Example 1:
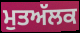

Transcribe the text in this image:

ਮੁਤਅੱਲਕ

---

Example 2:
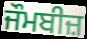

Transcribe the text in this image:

ਜੌਮਬੀਜ਼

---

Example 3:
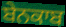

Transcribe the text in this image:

ਬੇਨਕਾਬ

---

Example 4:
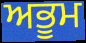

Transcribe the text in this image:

ਅਭੂਮ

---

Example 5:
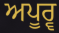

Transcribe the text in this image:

ਅਪੂਰ੍ਵ